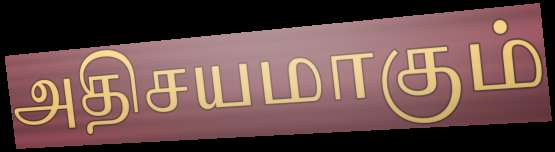
அதிசயமாகும்